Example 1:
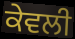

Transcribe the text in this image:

ਕੇਵਲੀ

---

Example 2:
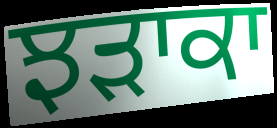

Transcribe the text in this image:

ਝੜਾਕਾ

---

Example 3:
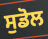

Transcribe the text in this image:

ਸੁਡੋਲ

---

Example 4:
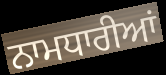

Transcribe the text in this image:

ਨਾਮਧਾਰੀਆਂ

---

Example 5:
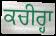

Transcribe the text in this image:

ਕਚੀਰ੍ਹਾ